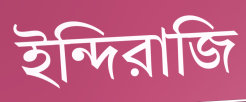
ইন্দিরাজি